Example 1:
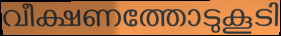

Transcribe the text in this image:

വീക്ഷണത്തോടുകൂടി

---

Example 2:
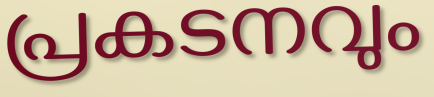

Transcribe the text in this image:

പ്രകടനവും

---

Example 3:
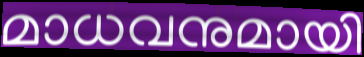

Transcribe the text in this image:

മാധവനുമായി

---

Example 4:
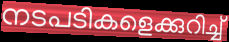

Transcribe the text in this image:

നടപടികളെക്കുറിച്ച്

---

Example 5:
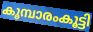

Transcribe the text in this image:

കൂമ്പാരംകൂട്ടി